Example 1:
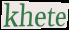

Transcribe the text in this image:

khete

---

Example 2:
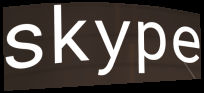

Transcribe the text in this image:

skype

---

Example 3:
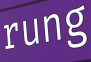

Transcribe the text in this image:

rung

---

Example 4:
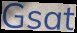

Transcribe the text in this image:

Gsat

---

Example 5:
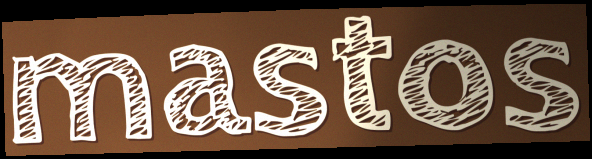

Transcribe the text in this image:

mastos